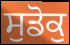
ਸੁਡੋਕੁ